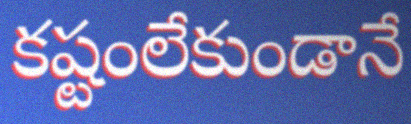
కష్టంలేకుండానే